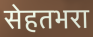
सेहतभरा